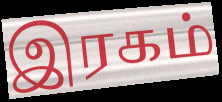
இரகம்